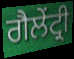
ਗੈਲੇਂਟ੍ਰੀ